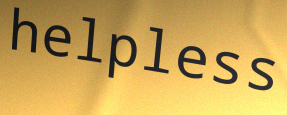
helpless